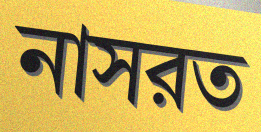
নাসরত